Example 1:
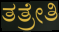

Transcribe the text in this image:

ತತ್ರೇತಿ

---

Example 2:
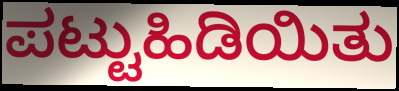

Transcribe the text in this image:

ಪಟ್ಟುಹಿಡಿಯಿತು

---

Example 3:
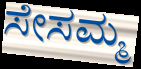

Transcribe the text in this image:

ಸೇಸಮ್ಮ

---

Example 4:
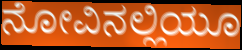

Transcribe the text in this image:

ನೋವಿನಲ್ಲಿಯೂ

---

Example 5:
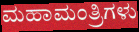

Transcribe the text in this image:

ಮಹಾಮಂತ್ರಿಗಳು